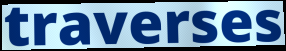
traverses